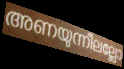
അണയുന്നീലല്ലോ